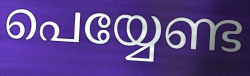
പെയ്യേണ്ട